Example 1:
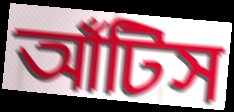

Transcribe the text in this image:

আঁটিস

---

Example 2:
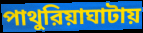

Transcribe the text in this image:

পাথুরিয়াঘাটায়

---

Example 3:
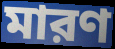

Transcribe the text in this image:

মারণ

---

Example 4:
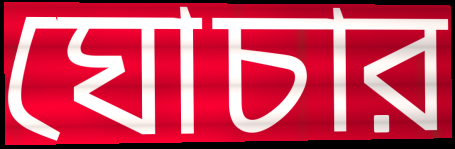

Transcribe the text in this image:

ঘোচার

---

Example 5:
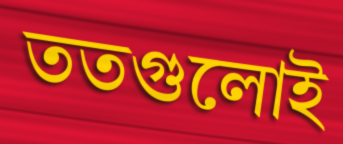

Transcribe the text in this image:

ততগুলোই